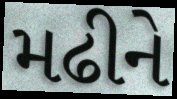
મઢીને